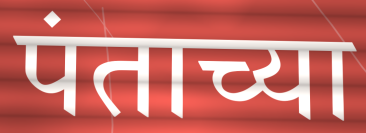
पंताच्या